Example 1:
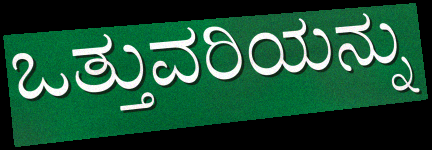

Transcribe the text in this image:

ಒತ್ತುವರಿಯನ್ನು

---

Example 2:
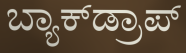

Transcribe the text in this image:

ಬ್ಯಾಕ್‌ಡ್ರಾಪ್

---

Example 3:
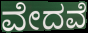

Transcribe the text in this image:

ವೇದವೆ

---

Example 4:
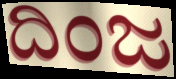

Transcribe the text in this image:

ದಿಂಜ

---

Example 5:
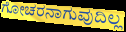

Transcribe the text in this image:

ಗೋಚರನಾಗುವುದಿಲ್ಲ